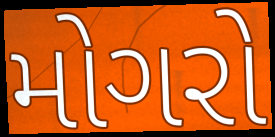
મોગરો